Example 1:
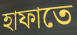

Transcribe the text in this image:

হাফাতে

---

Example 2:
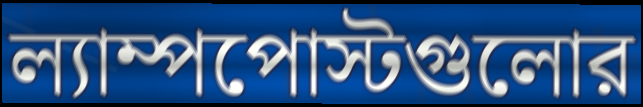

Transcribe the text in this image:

ল্যাম্পপোস্টগুলোর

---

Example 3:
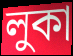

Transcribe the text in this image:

লুকা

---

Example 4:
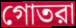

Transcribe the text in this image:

গোতরা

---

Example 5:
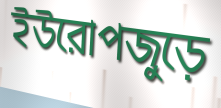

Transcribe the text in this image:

ইউরোপজুড়ে